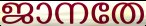
ജാനതേ